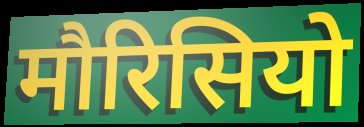
मौरिसियो